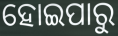
ହୋଇପାରୁ